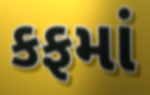
કફમાં